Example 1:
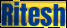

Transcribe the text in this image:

Ritesh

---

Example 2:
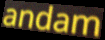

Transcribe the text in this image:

andam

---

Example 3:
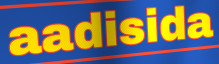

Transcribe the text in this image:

aadisida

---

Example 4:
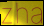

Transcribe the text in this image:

zha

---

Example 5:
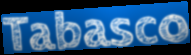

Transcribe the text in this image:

Tabasco